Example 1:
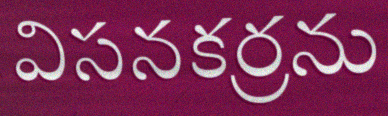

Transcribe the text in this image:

విసనకర్రను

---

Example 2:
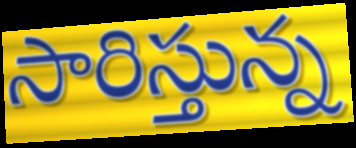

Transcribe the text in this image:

సారిస్తున్న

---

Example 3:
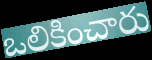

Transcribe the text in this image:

ఒలికించారు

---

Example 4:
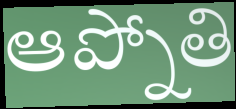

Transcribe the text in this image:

ఆప్నోతి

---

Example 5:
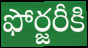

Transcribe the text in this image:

ఫోర్జరీకి